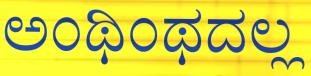
ಅಂಥಿಂಥದಲ್ಲ